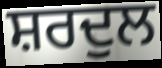
ਸ਼ਰਦੁਲ